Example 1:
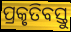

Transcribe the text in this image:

ପ୍ରକୃତିବସ୍ତୁ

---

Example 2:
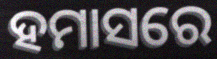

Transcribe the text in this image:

ହମାସରେ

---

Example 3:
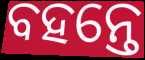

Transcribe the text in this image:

ବହନ୍ତେ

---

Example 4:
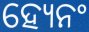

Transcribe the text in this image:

ହ୍ୟେନଂ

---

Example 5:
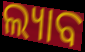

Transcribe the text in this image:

ଲ୍ୟାବ